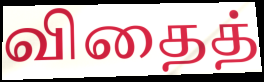
விதைத்